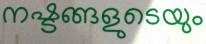
നഷ്ടങ്ങളുടെയും